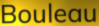
Bouleau